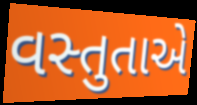
વસ્તુતાએ